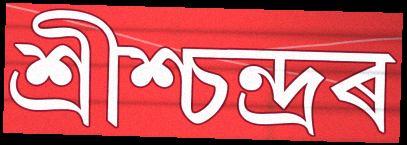
শ্ৰীশ্চন্দ্ৰৰ